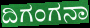
ದಿಗಂಗನಾ